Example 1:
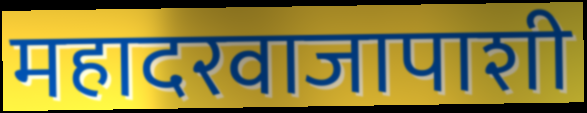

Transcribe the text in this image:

महादरवाजापाशी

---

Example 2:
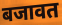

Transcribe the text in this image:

बजावत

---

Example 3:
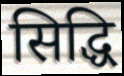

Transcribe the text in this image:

सिद्धि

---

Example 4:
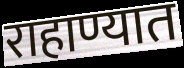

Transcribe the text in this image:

राहाण्यात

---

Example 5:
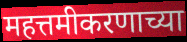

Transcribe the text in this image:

महत्तमीकरणाच्या